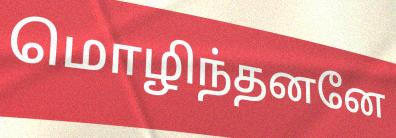
மொழிந்தனனே